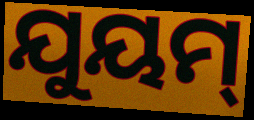
ଯୁୟମ୍